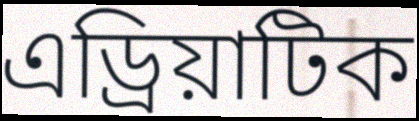
এড্ৰিয়াটিক